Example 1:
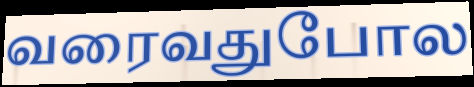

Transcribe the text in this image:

வரைவதுபோல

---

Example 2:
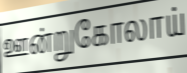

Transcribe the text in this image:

ஊன்றுகோலாய்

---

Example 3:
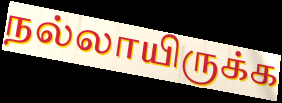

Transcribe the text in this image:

நல்லாயிருக்க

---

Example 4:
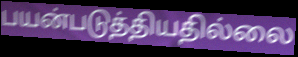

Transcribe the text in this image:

பயன்படுத்தியதில்லை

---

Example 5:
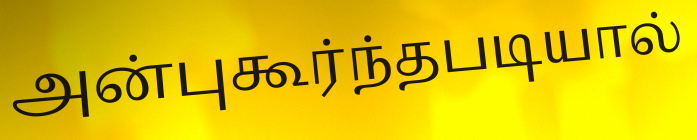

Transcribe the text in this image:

அன்புகூர்ந்தபடியால்